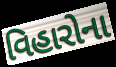
વિહારોના